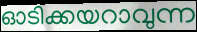
ഓടിക്കയറാവുന്ന